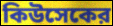
কিউসেকের